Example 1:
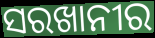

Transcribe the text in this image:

ସରଖାନୀର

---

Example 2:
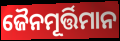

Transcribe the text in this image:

ଜୈନମୂର୍ତ୍ତିମାନ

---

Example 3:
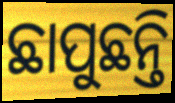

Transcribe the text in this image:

ଛାପୁଛନ୍ତି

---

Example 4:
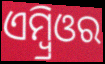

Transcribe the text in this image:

ଏମ୍ବ୍ରିଓର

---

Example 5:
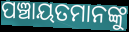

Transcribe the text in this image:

ପଞ୍ଚାୟତମାନଙ୍କୁ